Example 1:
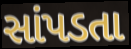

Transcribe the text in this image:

સાંપડતા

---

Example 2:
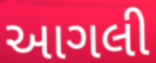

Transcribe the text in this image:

આગલી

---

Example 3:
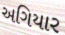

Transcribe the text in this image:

અગિયાર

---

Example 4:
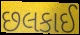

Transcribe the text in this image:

છલકાઈ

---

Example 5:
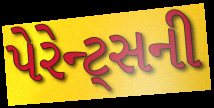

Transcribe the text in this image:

પેરેન્ટ્સની